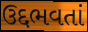
ઉદ્દભવતાં